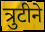
त्रुटीने